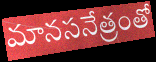
మానసనేత్రంతో